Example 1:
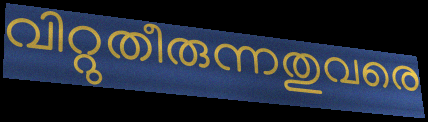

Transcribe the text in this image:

വിറ്റുതീരുന്നതുവരെ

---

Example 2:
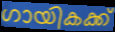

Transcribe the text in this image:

ഗായികക്ക്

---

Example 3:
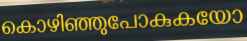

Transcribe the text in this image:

കൊഴിഞ്ഞുപോകുകയോ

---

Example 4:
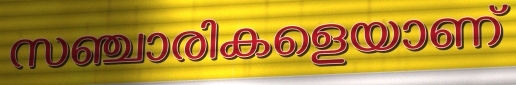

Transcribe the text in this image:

സഞ്ചാരികളെയാണ്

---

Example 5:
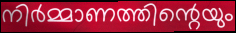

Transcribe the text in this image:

നിർമ്മാണത്തിന്റെയും